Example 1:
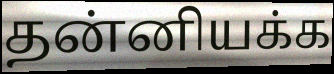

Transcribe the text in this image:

தன்னியக்க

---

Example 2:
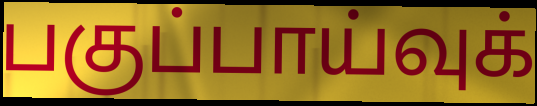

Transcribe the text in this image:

பகுப்பாய்வுக்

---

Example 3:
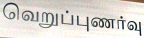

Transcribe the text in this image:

வெறுப்புணர்வு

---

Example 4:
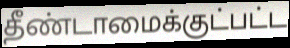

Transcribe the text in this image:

தீண்டாமைக்குட்பட்ட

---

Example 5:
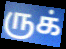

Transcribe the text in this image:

ருக்